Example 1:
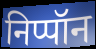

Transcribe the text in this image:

निप्पॉन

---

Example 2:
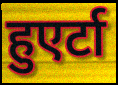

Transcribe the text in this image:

हुएर्टा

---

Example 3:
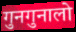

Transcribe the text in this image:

गुनगुनालो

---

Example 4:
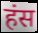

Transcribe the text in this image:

हंस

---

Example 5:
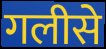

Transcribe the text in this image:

गलीसे